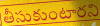
తీసుకుంటారని